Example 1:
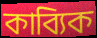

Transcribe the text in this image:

কাব্যিক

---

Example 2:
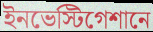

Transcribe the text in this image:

ইনভেস্টিগেশানে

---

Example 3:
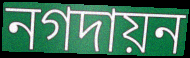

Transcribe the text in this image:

নগদায়ন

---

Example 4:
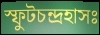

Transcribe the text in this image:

স্ফুটচন্দ্রহাসঃ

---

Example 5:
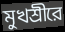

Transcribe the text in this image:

মুখশ্রীরে